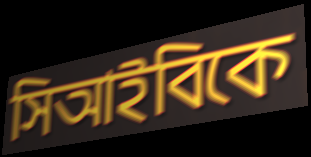
সিআইবিকে